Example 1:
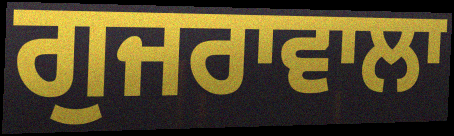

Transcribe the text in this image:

ਗੁਜਰਾਵਾਲਾ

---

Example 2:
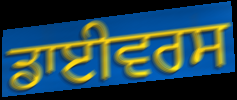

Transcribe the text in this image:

ਡਾਈਵਰਸ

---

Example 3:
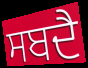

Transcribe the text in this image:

ਸਬਦੈ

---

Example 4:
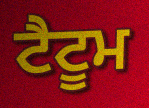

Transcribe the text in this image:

ਟੈਟੂਮ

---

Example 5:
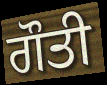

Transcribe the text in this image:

ਗੌਤੀ